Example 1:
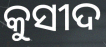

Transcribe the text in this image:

କୁସୀଦ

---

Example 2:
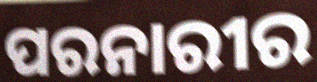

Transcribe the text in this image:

ପରନାରୀର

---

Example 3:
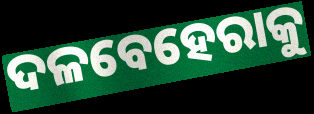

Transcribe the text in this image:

ଦଳବେହେରାକୁ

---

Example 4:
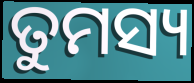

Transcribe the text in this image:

ତୁମସ୍ୟ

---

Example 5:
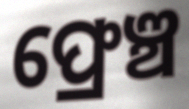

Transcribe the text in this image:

ଫ୍ରେଞ୍ଚ